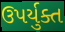
ઉપર્યુક્ત